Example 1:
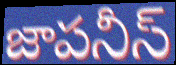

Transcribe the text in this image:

జాపనీస్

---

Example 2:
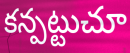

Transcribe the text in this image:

కన్పట్టుచూ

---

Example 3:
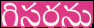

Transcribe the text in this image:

గిసరను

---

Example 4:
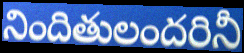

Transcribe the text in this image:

నిందితులందరినీ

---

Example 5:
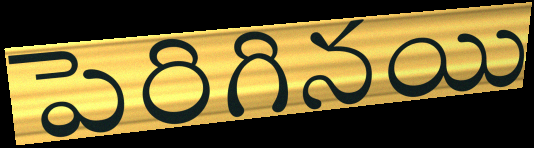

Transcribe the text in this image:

పెరిగినయి